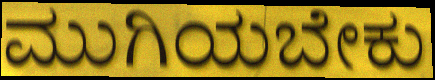
ಮುಗಿಯಬೇಕು